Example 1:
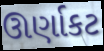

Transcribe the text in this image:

ઊર્ણાકટ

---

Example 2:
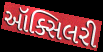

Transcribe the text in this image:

ઑક્સિલરી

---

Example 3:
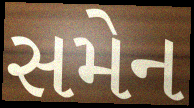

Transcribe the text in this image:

સમેન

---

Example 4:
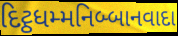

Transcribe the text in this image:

દિટ્ઠધમ્મનિબ્બાનવાદા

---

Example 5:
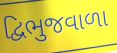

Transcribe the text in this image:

દ્વિભુજવાળા